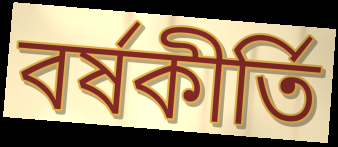
বর্ষকীর্তি